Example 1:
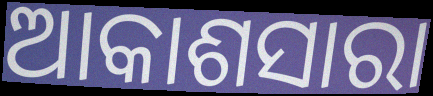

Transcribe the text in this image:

ଆକାଶସାରା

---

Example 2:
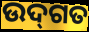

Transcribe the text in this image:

ଉଦ୍‌ଗତ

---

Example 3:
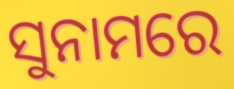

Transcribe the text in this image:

ସୁନାମରେ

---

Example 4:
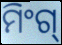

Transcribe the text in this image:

ମିଂଗ୍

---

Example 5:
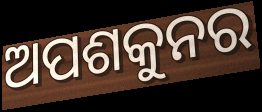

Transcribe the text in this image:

ଅପଶକୁନର